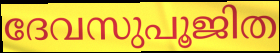
ദേവസുപൂജിത